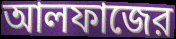
আলফাজের